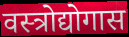
वस्त्रोद्योगास